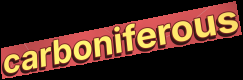
carboniferous